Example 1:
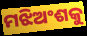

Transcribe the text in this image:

ମଝିଅଂଶକୁ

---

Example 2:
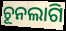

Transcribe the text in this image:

ଚୂନଲାଗି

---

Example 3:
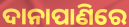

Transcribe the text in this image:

ଦାନାପାଣିରେ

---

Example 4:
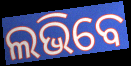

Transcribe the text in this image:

ଲଭିବେ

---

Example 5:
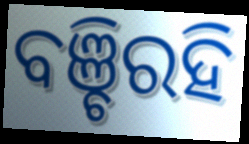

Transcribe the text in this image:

ବଞ୍ଚିରହି